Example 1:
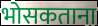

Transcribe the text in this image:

भोसकताना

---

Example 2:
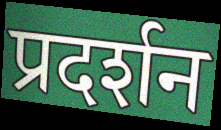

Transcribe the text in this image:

प्रदर्शन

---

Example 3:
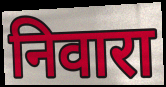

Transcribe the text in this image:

निवारा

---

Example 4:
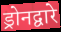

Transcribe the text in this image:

ड्रोनद्वारे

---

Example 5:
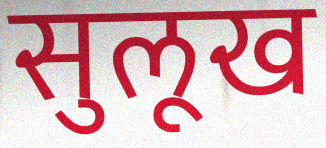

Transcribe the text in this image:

सुलूख